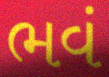
ભવં